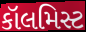
કૉલમિસ્ટ